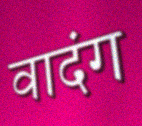
वादंग